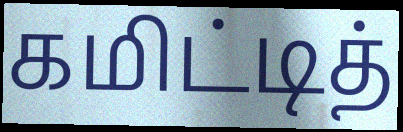
கமிட்டித்